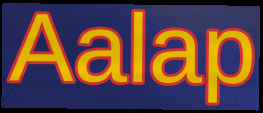
Aalap